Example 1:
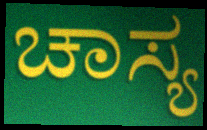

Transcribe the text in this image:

ಚಾಸ್ಯ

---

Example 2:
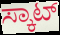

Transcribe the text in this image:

ಸ್ಕಾಟ್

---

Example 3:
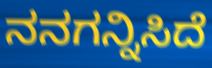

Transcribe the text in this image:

ನನಗನ್ನಿಸಿದೆ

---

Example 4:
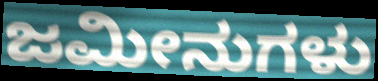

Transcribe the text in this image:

ಜಮೀನುಗಳು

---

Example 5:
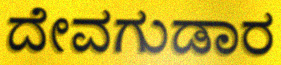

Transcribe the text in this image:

ದೇವಗುಡಾರ